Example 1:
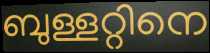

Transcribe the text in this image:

ബുള്ളറ്റിനെ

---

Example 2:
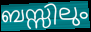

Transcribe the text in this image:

ബസ്സിലും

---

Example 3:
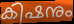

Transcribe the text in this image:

കിഷനും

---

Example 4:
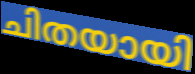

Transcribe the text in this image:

ചിതയായി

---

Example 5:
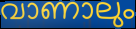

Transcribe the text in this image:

വാണാലും